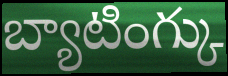
బ్యాటింగ్కు